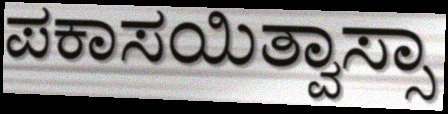
ಪಕಾಸಯಿತ್ವಾಸ್ಸಾ